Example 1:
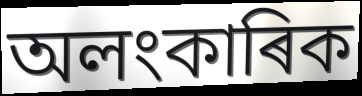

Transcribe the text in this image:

অলংকাৰিক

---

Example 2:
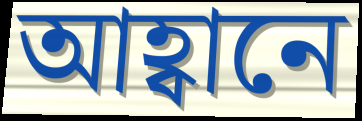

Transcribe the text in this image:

আহ্বানে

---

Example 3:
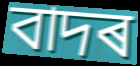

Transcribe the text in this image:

বাদৰ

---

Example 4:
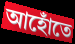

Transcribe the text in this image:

আহোঁতে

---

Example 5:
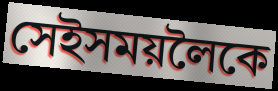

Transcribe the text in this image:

সেইসময়লৈকে